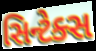
સિન્ટેક્સ